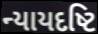
ન્યાયદષ્ટિ